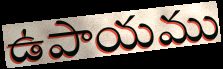
ఉపాయము